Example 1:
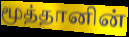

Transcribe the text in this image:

மூத்தானின்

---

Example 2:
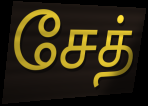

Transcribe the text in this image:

சேத்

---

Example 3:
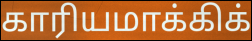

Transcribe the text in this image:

காரியமாக்கிக்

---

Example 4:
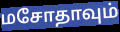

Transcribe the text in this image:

மசோதாவும்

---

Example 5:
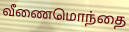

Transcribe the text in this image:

வீணைமொந்தை